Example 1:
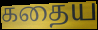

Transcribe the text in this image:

கதைய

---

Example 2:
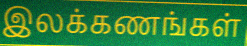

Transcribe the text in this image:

இலக்கணங்கள்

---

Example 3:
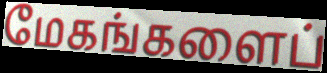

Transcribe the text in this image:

மேகங்களைப்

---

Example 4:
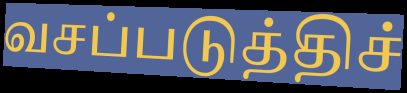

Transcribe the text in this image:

வசப்படுத்திச்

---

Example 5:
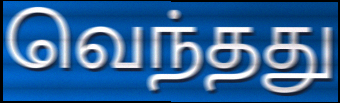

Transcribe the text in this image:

வெந்தது